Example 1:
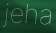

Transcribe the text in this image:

jeha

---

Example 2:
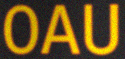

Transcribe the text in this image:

OAU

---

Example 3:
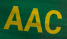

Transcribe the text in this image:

AAC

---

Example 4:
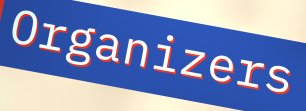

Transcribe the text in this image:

Organizers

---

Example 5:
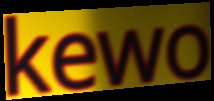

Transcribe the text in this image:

kewo